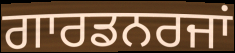
ਗਾਰਡਨਰਜਾਂ